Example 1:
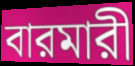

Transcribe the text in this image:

বারমারী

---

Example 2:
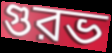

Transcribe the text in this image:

গুরভ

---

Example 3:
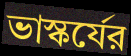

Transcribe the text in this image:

ভাস্কর্যের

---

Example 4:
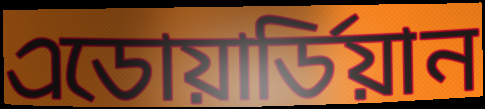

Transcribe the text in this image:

এডোয়ার্ডিয়ান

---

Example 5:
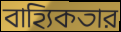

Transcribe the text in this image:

বাহ্যিকতার